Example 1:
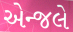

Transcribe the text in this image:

એન્જલે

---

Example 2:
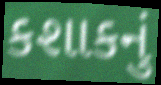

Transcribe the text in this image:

કશાકનું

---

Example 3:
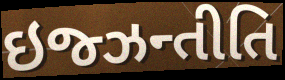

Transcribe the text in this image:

ઇજ્ઝન્તીતિ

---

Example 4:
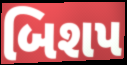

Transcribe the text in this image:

બિશપ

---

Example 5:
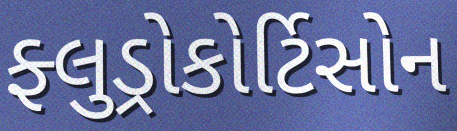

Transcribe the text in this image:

ફ્લુડ્રોકોર્ટિસોન